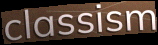
classism